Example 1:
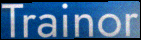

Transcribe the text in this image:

Trainor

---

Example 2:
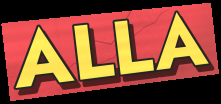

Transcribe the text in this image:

ALLA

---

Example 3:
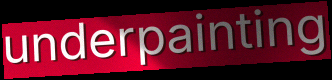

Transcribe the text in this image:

underpainting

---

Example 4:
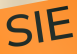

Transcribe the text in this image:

SIE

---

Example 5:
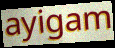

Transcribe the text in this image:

ayigam